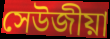
সেউজীয়া